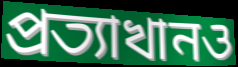
প্রত্যাখানও